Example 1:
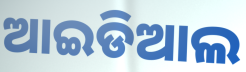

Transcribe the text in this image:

ଆଇଡିଆଲ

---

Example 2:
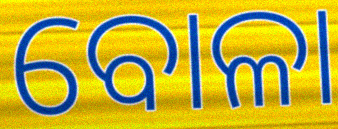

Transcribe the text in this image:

ବୋଳା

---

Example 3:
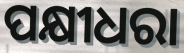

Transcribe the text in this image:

ପକ୍ଷୀଧରା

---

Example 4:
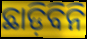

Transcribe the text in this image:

ଛାଡ଼ିବିନି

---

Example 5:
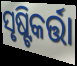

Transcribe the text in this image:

ସୃଷ୍ଟିକର୍ତ୍ତା